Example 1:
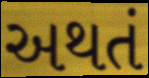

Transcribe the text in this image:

અથતં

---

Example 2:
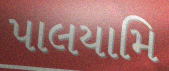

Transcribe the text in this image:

પાલયામિ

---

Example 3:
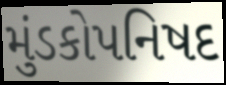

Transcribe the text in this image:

મુંડકોપનિષદ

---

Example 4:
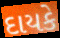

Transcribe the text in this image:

દાયકે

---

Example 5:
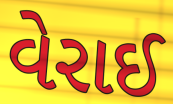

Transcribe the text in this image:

વેરાઈ